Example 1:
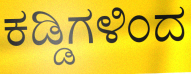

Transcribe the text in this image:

ಕಡ್ಡಿಗಳಿಂದ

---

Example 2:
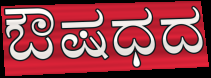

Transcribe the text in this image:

ಔಷಧದ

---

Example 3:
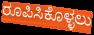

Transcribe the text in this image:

ರೂಪಿಸಿಕೊಳ್ಳಲು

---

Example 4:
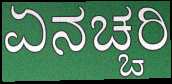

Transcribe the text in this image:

ಏನಚ್ಚರಿ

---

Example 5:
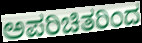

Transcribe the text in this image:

ಅಪರಿಚಿತರಿಂದ